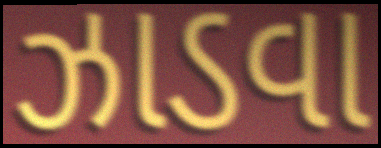
ઝાડવા